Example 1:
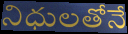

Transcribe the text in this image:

నిధులతోనే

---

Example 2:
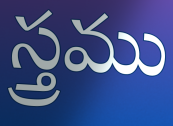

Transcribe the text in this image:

స్త్రము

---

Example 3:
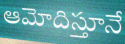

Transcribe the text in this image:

ఆమోదిస్తూనే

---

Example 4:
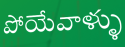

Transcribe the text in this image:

పోయేవాళ్ళు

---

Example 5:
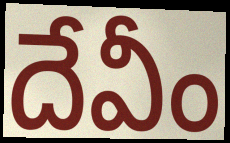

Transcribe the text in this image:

దేవీం